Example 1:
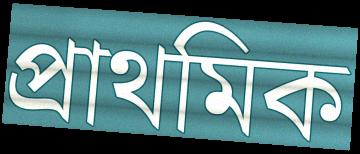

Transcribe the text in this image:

প্ৰাথমিক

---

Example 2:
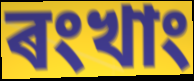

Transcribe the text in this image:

ৰংখাং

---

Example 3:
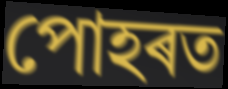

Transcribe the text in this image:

পোহৰত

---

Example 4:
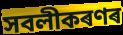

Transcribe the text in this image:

সবলীকৰণৰ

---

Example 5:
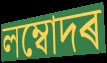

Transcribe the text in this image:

লম্বোদৰ